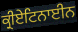
ਕ੍ਰੀਏਟਿਨਾਈਨ